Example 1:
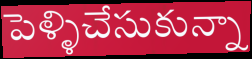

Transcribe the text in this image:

పెళ్ళిచేసుకున్నా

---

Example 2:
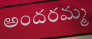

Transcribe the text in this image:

అందరమ్మ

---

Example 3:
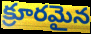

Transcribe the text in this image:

క్రూరమైన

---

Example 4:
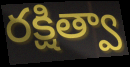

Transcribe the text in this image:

రక్షిత్వా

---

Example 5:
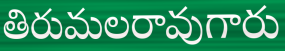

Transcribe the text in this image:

తిరుమలరావుగారు